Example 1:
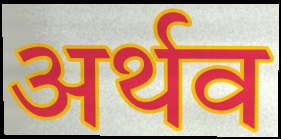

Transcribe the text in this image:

अर्थव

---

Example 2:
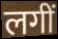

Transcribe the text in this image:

लगीं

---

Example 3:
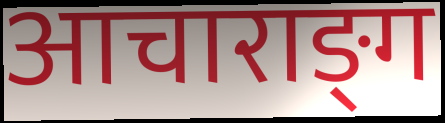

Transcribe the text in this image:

आचाराङ्ग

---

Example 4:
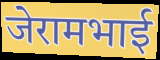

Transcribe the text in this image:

जेरामभाई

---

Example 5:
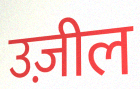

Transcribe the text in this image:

उज़ील